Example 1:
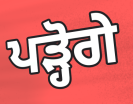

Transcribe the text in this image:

ਪੜ੍ਹੋਗੇ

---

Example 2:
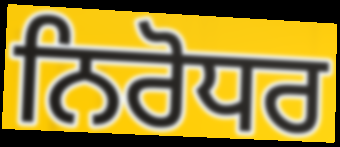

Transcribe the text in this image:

ਨਿਰੋਧਰ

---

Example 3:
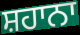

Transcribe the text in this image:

ਸ਼ਹਾਨਾ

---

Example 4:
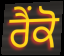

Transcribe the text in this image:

ਰੈਂਕੋ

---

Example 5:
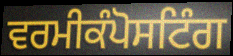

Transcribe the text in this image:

ਵਰਮੀਕੰਪੋਸਟਿੰਗ